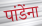
पांडेंना